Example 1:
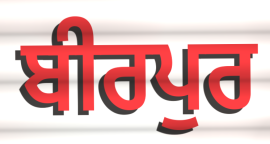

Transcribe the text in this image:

ਬੀਰਪੁਰ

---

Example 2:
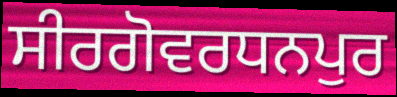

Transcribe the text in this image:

ਸੀਰਗੋਵਰਧਨਪੁਰ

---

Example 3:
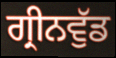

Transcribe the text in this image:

ਗ੍ਰੀਨਵੁੱਡ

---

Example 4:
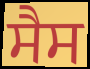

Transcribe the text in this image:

ਸੈਸ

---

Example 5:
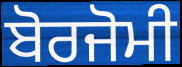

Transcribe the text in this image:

ਬੋਰਜੋਮੀ